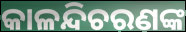
କାଳନ୍ଦିଚରଣଙ୍କ